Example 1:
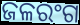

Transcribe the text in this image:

ଜଳରଂଗ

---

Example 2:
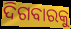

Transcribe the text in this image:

ଦିଗବାରକୁ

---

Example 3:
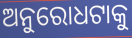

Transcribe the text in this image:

ଅନୁରୋଧଟାକୁ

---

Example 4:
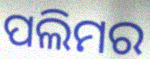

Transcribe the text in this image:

ପଲିମର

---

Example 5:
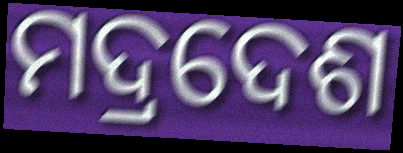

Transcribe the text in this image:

ମଦ୍ରଦେଶ